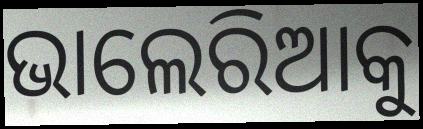
ଭାଲେରିଆକୁ